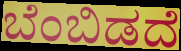
ಬೆಂಬಿಡದೆ